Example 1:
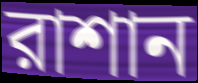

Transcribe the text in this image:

রাশান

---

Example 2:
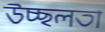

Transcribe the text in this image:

উচ্ছলতা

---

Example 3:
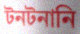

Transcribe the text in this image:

টনটনানি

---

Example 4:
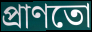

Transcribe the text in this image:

প্রাণতো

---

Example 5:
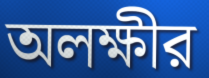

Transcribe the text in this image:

অলক্ষীর